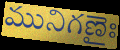
మునిగణైః